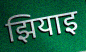
झियाइ